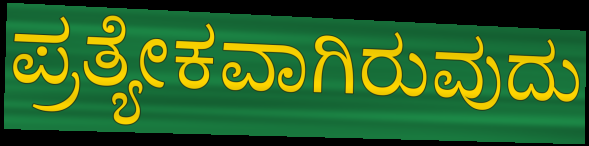
ಪ್ರತ್ಯೇಕವಾಗಿರುವುದು